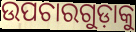
ଉପଚାରଗୁଡ଼ାକୁ